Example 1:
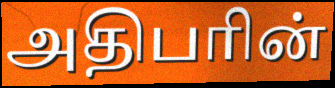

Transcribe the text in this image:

அதிபரின்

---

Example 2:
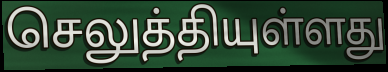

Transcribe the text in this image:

செலுத்தியுள்ளது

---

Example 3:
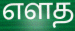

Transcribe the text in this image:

எளத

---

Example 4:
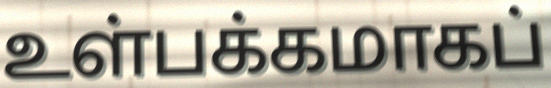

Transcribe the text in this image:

உள்பக்கமாகப்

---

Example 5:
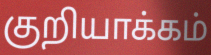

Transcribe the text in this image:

குறியாக்கம்